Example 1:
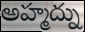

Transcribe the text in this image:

అహ్మద్ను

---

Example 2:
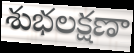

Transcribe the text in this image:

శుభలక్షణా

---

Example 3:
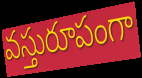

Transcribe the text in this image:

వస్తురూపంగా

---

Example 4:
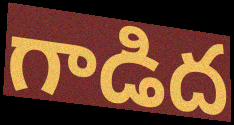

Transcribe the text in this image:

గాడిద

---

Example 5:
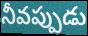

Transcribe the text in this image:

నీవప్పుడు